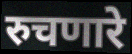
रुचणारे